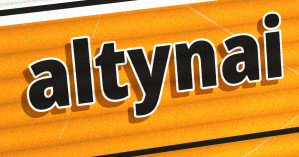
altynai